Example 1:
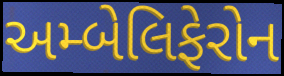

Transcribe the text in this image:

અમ્બેલિફેરોન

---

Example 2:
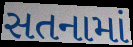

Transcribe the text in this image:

સતનામાં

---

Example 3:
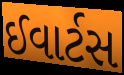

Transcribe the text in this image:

ઈવાર્ટસ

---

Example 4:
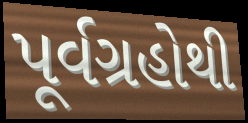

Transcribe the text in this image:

પૂર્વગ્રહોથી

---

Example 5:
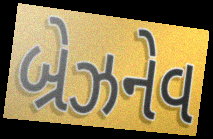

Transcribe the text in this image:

બ્રેઝનેવ